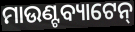
ମାଉଣ୍ଟବ୍ୟାଟେନ୍